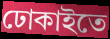
ঢোকাইতে